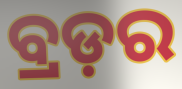
ବ୍ରଡ଼ର